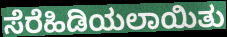
ಸೆರೆಹಿಡಿಯಲಾಯಿತು